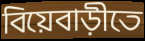
বিয়েবাড়ীতে